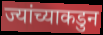
ज्यांच्याकडुन